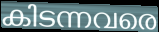
കിടന്നവരെ